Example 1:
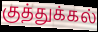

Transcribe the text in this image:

குத்துக்கல்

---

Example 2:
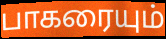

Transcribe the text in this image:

பாகரையும்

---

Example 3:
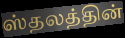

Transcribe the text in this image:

ஸ்தலத்தின்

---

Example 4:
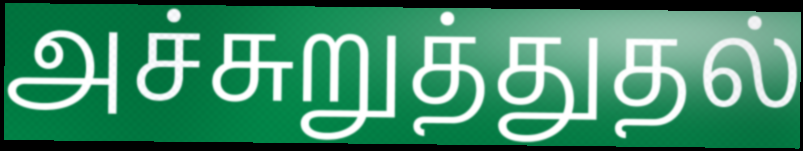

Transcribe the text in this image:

அச்சுறுத்துதல்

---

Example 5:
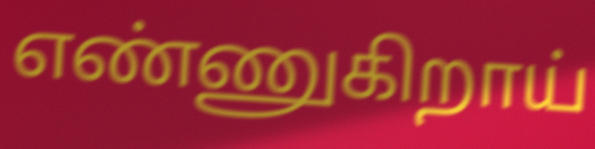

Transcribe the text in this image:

எண்ணுகிறாய்